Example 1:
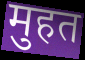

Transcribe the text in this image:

मुहत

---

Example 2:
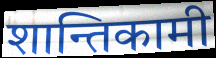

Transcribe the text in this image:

शान्तिकामी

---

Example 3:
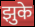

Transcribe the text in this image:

झुके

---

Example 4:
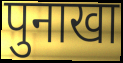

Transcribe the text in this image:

पुनाखा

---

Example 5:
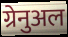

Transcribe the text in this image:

ग्रेनुअल